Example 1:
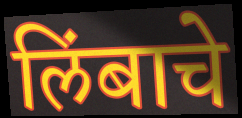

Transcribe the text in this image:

लिंबाचे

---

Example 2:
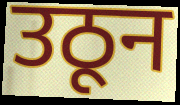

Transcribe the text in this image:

उठून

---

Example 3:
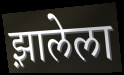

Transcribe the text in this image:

झ़ालेला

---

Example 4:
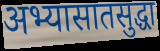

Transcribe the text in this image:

अभ्यासातसुद्धा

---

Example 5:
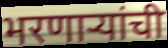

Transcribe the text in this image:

भरणाऱ्यांची